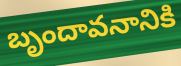
బృందావనానికి